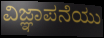
ವಿಜ್ಞಾಪನೆಯು